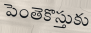
పెంతెకొస్తుకు